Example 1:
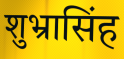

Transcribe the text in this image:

शुभ्रासिंह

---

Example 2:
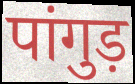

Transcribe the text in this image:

पांगुड़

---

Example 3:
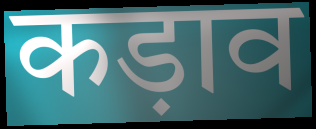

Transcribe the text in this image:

कड़ाव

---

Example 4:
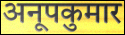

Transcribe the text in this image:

अनूपकुमार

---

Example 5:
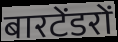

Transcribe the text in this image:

बारटेंडरों